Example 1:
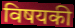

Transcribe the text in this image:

विषयकी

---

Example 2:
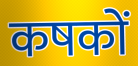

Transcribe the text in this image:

कषकों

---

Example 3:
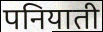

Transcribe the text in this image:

पनियाती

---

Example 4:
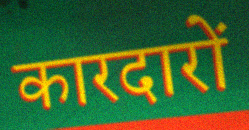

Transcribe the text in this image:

कारदारों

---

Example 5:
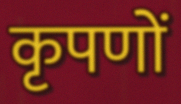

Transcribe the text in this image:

कृपणों